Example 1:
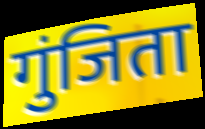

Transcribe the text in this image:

गुंजिता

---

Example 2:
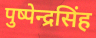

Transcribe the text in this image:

पुष्पेन्द्रसिंह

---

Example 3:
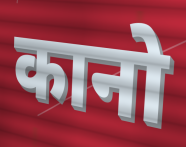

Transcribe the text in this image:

कानो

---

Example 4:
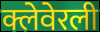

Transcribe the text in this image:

क्लेवेरली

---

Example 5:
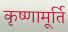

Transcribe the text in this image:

कृष्णामूर्ति